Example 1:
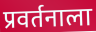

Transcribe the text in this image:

प्रवर्तनाला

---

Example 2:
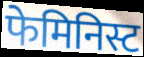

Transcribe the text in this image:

फेमिनिस्ट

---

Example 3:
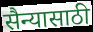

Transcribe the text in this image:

सैन्यासाठी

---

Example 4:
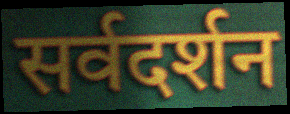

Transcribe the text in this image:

सर्वदर्शन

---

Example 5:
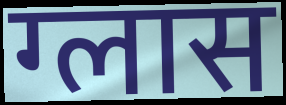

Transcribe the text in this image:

ग्लास